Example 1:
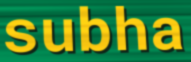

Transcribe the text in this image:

subha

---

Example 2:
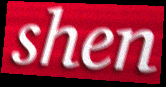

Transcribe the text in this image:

shen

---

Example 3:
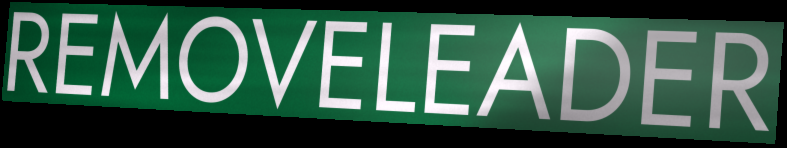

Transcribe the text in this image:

REMOVELEADER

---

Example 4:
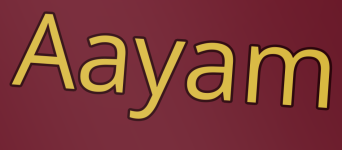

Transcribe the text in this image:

Aayam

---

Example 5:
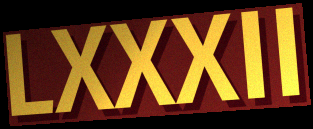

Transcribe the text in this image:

LXXXII